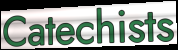
Catechists